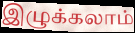
இழுக்கலாம்